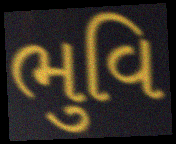
ભુવિ